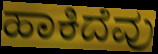
ಹಾಕಿದೆವು